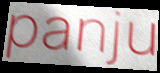
panju